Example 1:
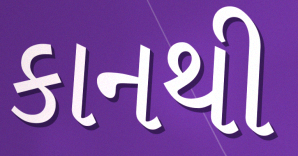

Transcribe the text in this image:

કાનથી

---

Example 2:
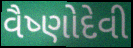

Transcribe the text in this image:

વૈષ્ણોદેવી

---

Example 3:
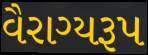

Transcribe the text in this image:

વૈરાગ્યરૂપ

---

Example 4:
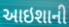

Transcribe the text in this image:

આઇશાની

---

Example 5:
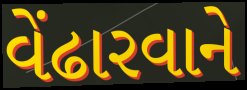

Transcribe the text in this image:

વેંઢારવાને